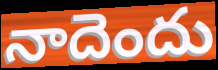
నాదెందు